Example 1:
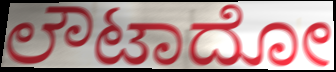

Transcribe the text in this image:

ಲೌಟಾದೋ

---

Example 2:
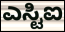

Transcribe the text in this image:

ಎಸ್ಟಿಐ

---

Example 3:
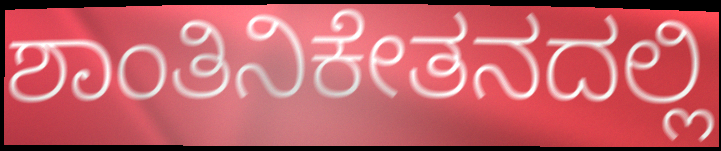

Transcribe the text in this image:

ಶಾಂತಿನಿಕೇತನದಲ್ಲಿ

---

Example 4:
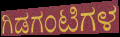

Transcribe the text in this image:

ಗಿಡಗಂಟಿಗಳ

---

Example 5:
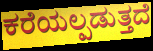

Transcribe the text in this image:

ಕರೆಯಲ್ಪಡುತ್ತದೆ